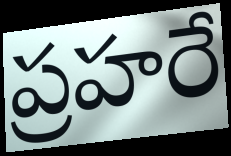
ప్రహరే